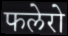
फलेरो